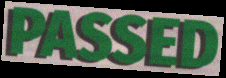
PASSED